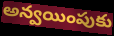
అన్వయింపుకు